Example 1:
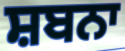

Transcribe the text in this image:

ਸ਼ਬਨਾ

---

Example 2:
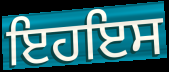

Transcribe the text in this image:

ਇਹਇਸ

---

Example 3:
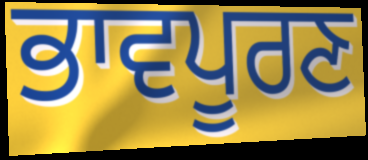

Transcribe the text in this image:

ਭਾਵਪੂਰਣ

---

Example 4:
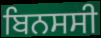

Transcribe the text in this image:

ਬਿਨਸਸੀ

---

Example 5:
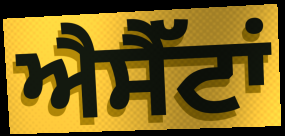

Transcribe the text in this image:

ਐਸੈੱਟਾਂ